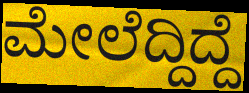
ಮೇಲೆದ್ದಿದ್ದೆ